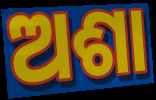
ଅଶା